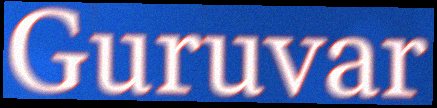
Guruvar